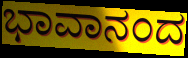
ಭಾವಾನಂದ